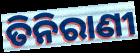
ତିନିରାଣୀ